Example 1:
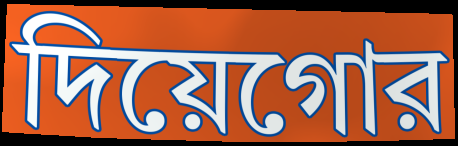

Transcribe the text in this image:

দিয়েগোর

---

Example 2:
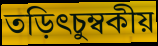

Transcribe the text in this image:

তড়িৎচুম্বকীয়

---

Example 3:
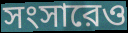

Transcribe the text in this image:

সংসারেও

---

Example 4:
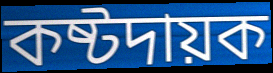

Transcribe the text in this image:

কষ্টদায়ক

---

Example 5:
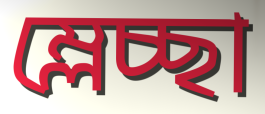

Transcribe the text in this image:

ম্লেচ্ছা